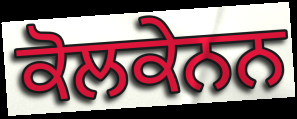
ਕੋਲਕੇਨਨ